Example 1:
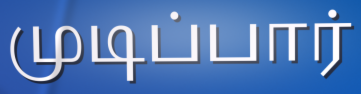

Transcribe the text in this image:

முடிப்பார்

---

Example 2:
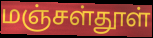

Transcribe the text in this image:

மஞ்சள்தூள்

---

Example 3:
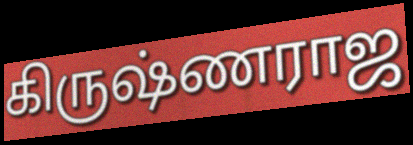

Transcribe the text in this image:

கிருஷ்ணராஜ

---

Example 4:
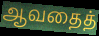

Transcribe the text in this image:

ஆவதைத்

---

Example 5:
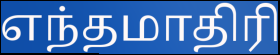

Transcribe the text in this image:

எந்தமாதிரி